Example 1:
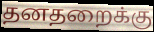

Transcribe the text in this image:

தனதறைக்கு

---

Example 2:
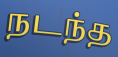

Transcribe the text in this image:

நடந்த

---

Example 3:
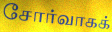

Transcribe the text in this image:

சோர்வாகக்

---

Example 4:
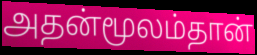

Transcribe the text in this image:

அதன்மூலம்தான்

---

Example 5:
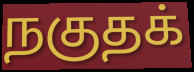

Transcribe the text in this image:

நகுதக்